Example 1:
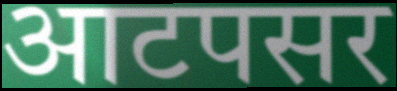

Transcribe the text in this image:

आटपसर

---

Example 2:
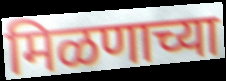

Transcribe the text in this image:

मिळणाच्या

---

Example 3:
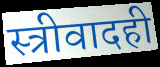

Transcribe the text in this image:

स्त्रीवादही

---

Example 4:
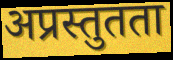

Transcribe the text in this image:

अप्रस्तुतता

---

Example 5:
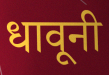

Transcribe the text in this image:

धावूनी